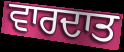
ਵਾਰਦਾਤ